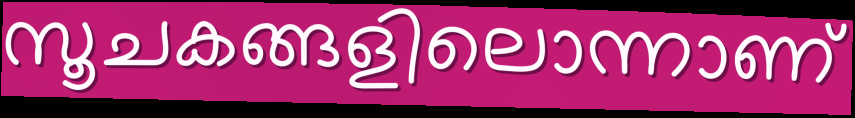
സൂചകങ്ങളിലൊന്നാണ്